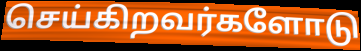
செய்கிறவர்களோடு